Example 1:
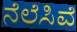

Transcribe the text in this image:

ನೆಲೆಸಿವೆ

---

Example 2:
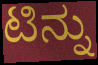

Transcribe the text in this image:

ಟಿನ್ನು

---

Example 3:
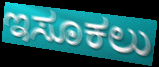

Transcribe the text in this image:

ಇಸೂಕಲು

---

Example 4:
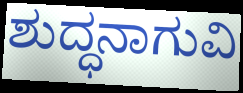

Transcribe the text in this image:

ಶುದ್ಧನಾಗುವಿ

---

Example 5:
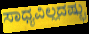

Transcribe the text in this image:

ಸಾಧ್ಯವಿಲ್ಲದಷ್ಟು